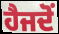
ਹੈਜਦੋਂ